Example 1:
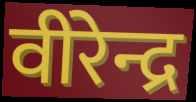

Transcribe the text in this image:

वीरेन्‍द्र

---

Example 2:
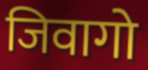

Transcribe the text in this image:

जिवागो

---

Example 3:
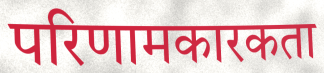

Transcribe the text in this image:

परिणामकारकता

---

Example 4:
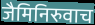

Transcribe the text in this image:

जैमिनिरुवाच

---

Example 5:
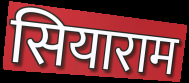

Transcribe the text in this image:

सियाराम